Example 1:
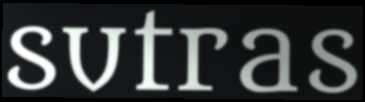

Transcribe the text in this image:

sutras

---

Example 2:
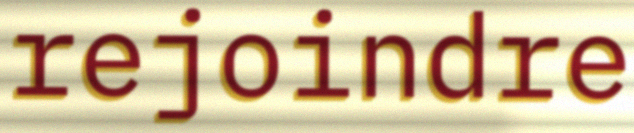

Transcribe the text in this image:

rejoindre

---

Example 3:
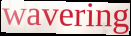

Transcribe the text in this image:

wavering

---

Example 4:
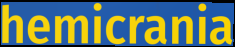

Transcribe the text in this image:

hemicrania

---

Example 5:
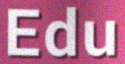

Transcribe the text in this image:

Edu